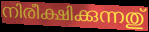
നിരീക്ഷിക്കുന്നതു്